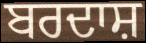
ਬਰਦਾਸ਼